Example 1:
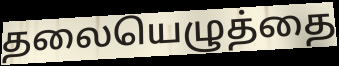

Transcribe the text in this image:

தலையெழுத்தை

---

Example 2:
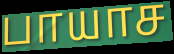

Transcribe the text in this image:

பாயாச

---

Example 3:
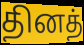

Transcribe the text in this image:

தினத்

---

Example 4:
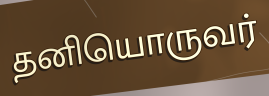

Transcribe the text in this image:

தனியொருவர்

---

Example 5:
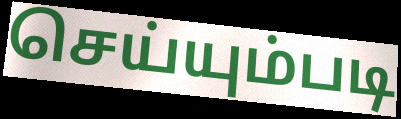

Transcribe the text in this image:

செய்யும்படி